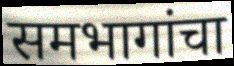
समभागांचा